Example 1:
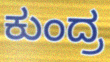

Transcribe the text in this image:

ಕುಂದ್ರ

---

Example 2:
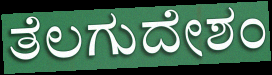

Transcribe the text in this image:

ತೆಲಗುದೇಶಂ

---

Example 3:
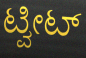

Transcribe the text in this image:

ಟ್ವೀಟ್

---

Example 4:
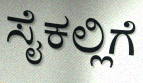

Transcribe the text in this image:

ಸೈಕಲ್ಲಿಗೆ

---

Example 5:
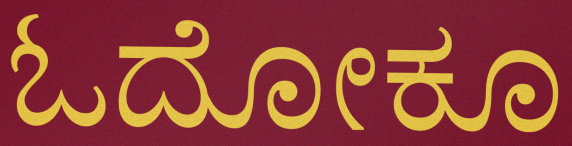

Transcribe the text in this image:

ಓದೋಕೂ